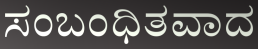
ಸಂಬಂಧಿತವಾದ